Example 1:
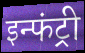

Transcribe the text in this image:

इन्फंट्री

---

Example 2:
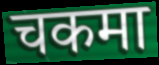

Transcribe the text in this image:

चकमा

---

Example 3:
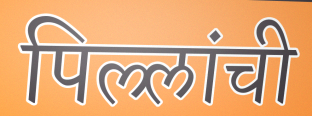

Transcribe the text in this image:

पिल्लांची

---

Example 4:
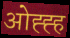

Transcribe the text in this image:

ओह्ह्ह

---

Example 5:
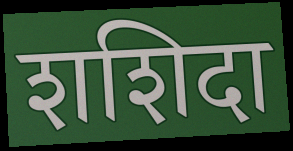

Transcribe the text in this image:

शशिदा